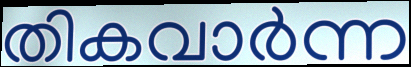
തികവാർന്ന